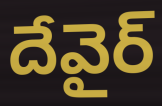
దేవైర్